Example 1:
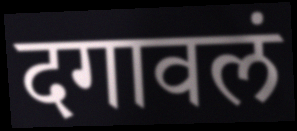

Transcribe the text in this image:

दगावलं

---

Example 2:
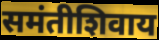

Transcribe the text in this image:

समंतीशिवाय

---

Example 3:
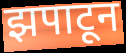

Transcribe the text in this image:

झपाटून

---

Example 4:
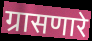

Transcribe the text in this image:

ग्रासणारे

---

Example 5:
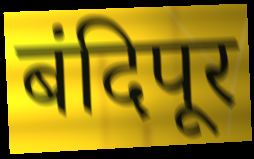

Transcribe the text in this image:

बंदिपूर